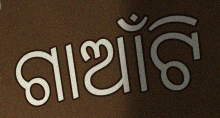
ଗାଆଁଟି